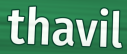
thavil